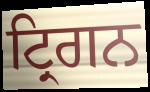
ਟ੍ਰਿਗਨ